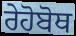
ਰੇਹੋਬੋਥ